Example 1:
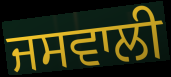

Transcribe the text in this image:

ਜਸਵਾਲੀ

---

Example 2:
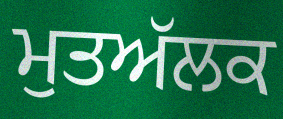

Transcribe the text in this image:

ਮੁਤਅੱਲਕ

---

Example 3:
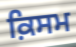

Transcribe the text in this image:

ਕ਼ਿਸਮ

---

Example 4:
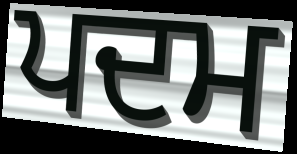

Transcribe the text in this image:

ਪਦਮ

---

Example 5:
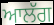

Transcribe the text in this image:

ਆਲੱਗ